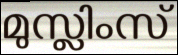
മുസ്ലിംസ്